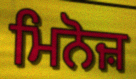
ਮਿਨੋਜ਼